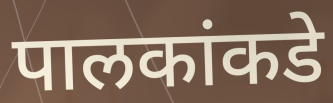
पालकांकडे